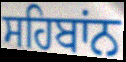
ਸਹਿਬਾਂਨ